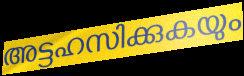
അട്ടഹസിക്കുകയും